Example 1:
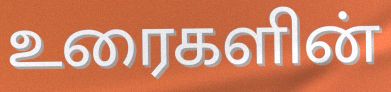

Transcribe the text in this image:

உரைகளின்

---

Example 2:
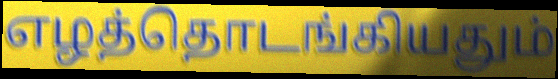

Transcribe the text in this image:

எழத்தொடங்கியதும்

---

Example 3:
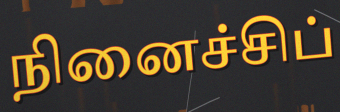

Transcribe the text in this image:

நினைச்சிப்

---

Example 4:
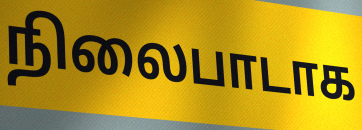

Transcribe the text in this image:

நிலைபாடாக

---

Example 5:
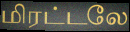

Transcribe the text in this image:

மிரட்டலே